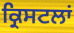
ਕ੍ਰਿਸਟਲਾਂ